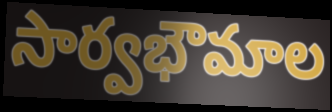
సార్వభౌమాల